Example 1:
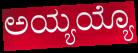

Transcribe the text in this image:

ಅಯ್ಯಯ್ಯೊ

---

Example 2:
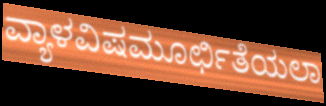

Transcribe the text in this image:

ವ್ಯಾಳವಿಷಮೂರ್ಛಿತೆಯಲಾ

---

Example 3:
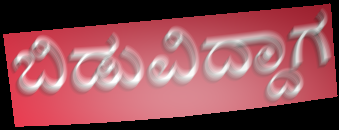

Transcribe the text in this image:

ಬಿಡುವಿದ್ದಾಗ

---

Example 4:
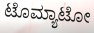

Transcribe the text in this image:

ಟೊಮ್ಯಾಟೋ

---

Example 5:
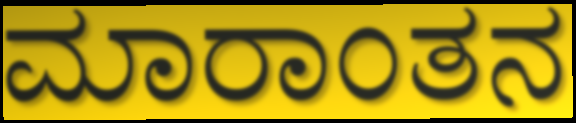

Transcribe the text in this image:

ಮಾರಾಂತನ